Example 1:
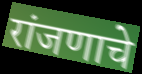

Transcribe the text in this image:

रांजणाचे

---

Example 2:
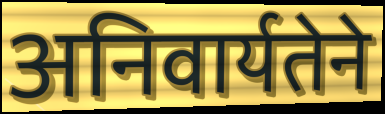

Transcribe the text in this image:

अनिवार्यतेने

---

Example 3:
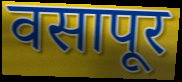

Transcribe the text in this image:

वसापूर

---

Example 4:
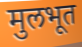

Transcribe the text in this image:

मुलभूत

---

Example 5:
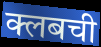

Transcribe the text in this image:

क्लबची